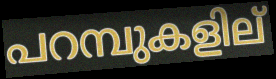
പറമ്പുകളില്